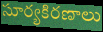
సూర్యకిరణాలు